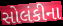
સોલંકીના